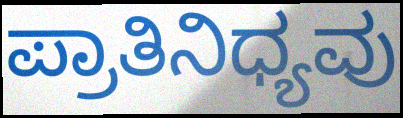
ಪ್ರಾತಿನಿಧ್ಯವು